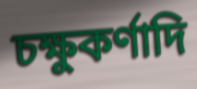
চক্ষুকর্ণাদি